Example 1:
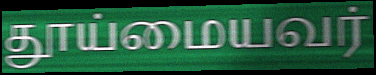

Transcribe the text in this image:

தூய்மையவர்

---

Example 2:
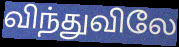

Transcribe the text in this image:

விந்துவிலே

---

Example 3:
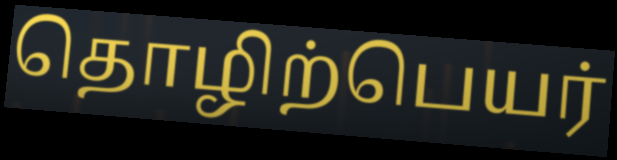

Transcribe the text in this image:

தொழிற்பெயர்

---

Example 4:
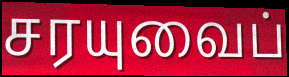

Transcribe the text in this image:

சரயுவைப்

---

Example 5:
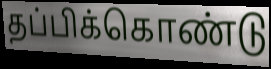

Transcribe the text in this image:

தப்பிக்கொண்டு